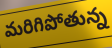
మరిగిపోతున్న